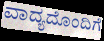
ವಾದ್ಯದೊಂದಿಗೆ